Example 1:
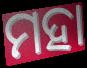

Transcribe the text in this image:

ମହା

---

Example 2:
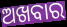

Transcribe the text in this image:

ଅଖବାର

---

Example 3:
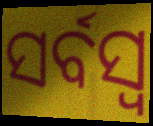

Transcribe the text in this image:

ସର୍ବସ୍ୱ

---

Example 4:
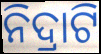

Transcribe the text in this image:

ନିଦ୍ରାଟି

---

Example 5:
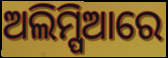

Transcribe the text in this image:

ଅଲିମ୍ପିଆରେ